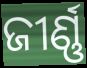
ଜୀର୍ଣ୍ଣ